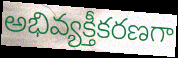
అభివ్యక్తీకరణగా